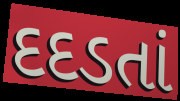
દદડતાં